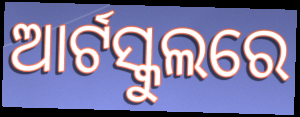
ଆର୍ଟସ୍କୁଲରେ